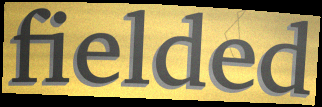
fielded